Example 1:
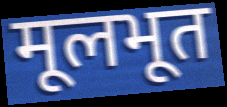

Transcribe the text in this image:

मूलभूत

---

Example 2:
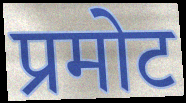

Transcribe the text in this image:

प्रमोट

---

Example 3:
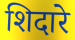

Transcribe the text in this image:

शिदारे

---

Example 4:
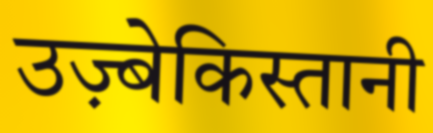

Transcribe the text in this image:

उज़्बेकिस्तानी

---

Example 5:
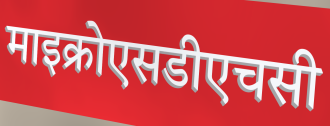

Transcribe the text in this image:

माइक्रोएसडीएचसी